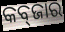
କବ୍‌ଜାର